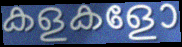
കളകളോ